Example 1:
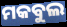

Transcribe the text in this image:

ମକବୁଲ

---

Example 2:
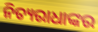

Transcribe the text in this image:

ନିତ୍ୟରାଧାଙ୍କର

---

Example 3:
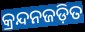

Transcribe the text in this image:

କ୍ରନ୍ଦନଜଡ଼ିତ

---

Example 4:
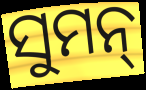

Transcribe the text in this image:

ସୁମନ୍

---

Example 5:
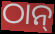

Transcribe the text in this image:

ଠାନ୍